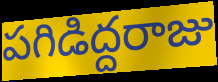
పగిడిద్దరాజు